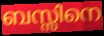
ബസ്സിനെ